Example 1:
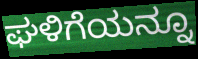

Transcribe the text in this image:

ಘಳಿಗೆಯನ್ನೂ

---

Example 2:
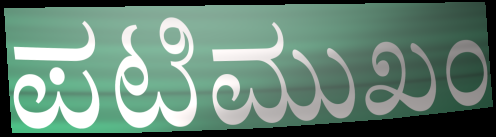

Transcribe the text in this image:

ಪಟಿಮುಖಂ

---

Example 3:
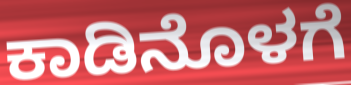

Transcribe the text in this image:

ಕಾಡಿನೊಳಗೆ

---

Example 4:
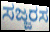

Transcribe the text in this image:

ಸಜ್ಜರಸ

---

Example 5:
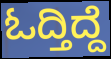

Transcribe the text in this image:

ಓದ್ತಿದ್ದೆ